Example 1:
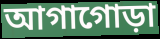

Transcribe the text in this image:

আগাগোড়া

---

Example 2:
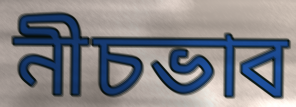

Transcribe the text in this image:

নীচভাব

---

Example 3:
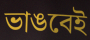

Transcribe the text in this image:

ভাঙবেই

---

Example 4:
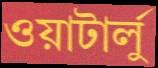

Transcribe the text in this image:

ওয়াটার্লু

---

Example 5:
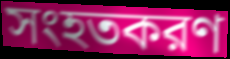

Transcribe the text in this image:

সংহতকরণ